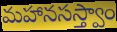
మహానసస్త్వాం